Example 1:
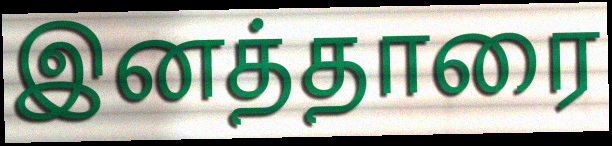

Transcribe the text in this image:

இனத்தாரை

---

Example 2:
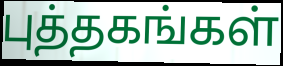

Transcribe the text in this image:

புத்தகங்கள்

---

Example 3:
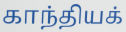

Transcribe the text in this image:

காந்தியக்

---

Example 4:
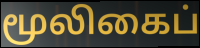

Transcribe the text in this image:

மூலிகைப்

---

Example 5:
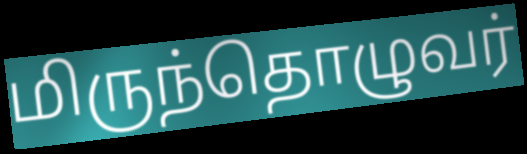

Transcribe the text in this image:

மிருந்தொழுவர்